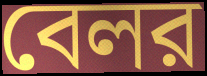
বেলর